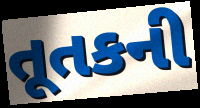
તૂતકની